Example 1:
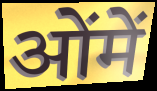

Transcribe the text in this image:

ओंमें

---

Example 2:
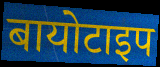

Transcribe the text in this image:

बायोटाइप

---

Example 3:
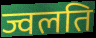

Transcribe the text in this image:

ज्वलति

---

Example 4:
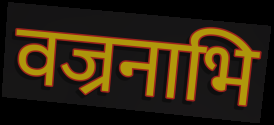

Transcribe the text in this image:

वज्रनाभि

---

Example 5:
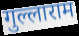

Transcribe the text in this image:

गुल्लाराम